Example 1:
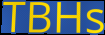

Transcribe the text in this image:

TBHs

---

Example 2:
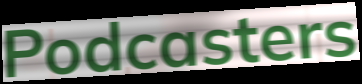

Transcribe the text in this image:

Podcasters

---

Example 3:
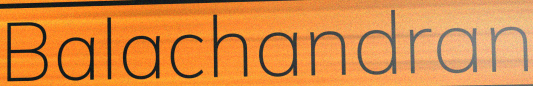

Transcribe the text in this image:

Balachandran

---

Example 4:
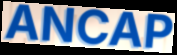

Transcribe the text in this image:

ANCAP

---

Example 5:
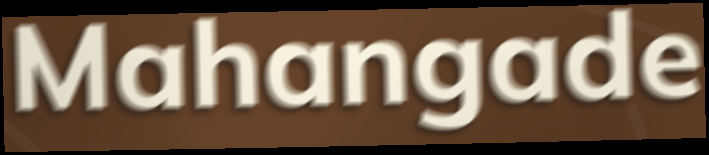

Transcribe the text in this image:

Mahangade